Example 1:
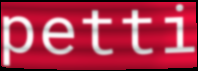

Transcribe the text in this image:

petti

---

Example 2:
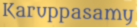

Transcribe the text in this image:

Karuppasamy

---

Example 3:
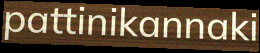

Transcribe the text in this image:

pattinikannaki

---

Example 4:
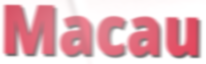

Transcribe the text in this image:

Macau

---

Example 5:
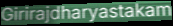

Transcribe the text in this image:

Girirajdharyastakam